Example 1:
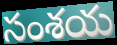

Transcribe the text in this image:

సంశయ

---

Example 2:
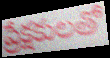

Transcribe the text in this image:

ప్రేక్షకులతో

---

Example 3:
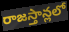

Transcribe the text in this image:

రాజస్తాన్లలో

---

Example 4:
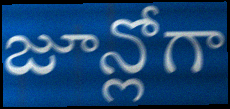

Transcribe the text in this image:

జూన్లోగా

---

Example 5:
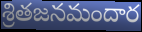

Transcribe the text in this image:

శ్రితజనమందార